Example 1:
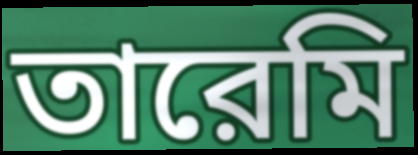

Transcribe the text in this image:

তারেমি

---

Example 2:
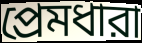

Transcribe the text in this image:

প্রেমধারা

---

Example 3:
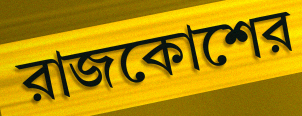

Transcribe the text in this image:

রাজকোশের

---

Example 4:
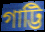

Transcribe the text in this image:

গাট্টি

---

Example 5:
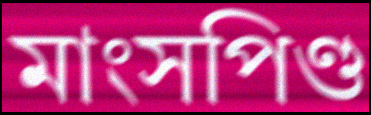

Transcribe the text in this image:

মাংসপিণ্ড